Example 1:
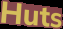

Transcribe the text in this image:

Huts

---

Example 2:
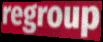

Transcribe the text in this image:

regroup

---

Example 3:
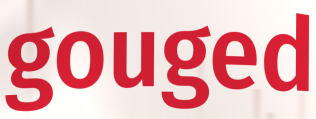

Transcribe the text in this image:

gouged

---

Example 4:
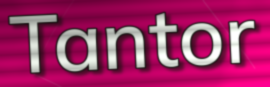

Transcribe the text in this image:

Tantor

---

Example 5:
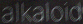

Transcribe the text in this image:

alkaloid